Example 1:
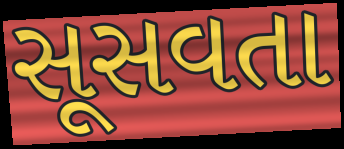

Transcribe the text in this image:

સૂસવતા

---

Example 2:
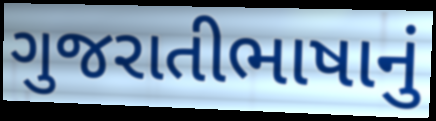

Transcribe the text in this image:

ગુજરાતીભાષાનું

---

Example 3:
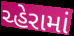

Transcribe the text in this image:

ચ્હેરામાં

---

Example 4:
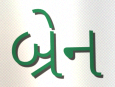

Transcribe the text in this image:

બ્રેન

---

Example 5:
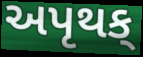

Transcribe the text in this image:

અપૃથક્